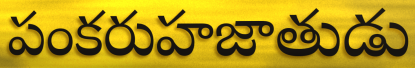
పంకరుహజాతుడు